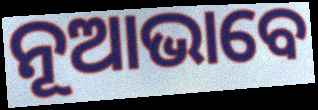
ନୂଆଭାବେ